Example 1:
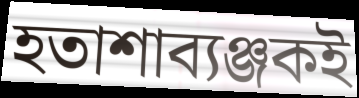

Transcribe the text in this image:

হতাশাব্যঞ্জকই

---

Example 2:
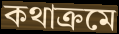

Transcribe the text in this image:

কথাক্রমে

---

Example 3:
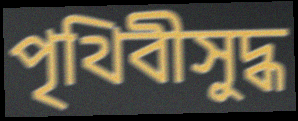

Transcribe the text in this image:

পৃথিবীসুদ্ধ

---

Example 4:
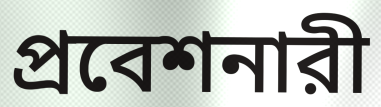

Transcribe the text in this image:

প্রবেশনারী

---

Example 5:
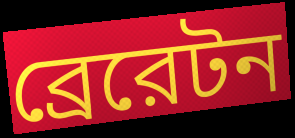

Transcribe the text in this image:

ব্রেরেটন